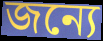
জন্যে